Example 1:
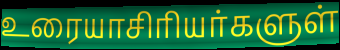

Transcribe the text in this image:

உரையாசிரியர்களுள்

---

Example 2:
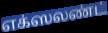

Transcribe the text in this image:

எக்ஸலண்ட்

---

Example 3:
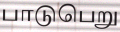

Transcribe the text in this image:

பாடுபெறு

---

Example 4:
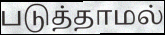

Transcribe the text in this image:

படுத்தாமல்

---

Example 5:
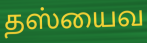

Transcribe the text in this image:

தஸ்யைவ